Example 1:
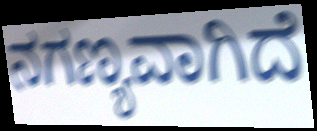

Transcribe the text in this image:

ನಗಣ್ಯವಾಗಿದೆ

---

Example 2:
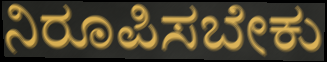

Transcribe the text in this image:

ನಿರೂಪಿಸಬೇಕು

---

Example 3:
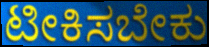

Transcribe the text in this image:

ಟೀಕಿಸಬೇಕು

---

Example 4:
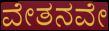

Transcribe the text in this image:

ವೇತನವೇ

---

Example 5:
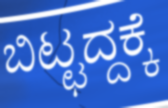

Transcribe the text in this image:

ಬಿಟ್ಟದ್ದಕ್ಕೆ